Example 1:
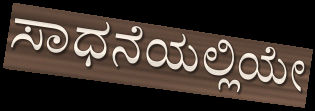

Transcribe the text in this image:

ಸಾಧನೆಯಲ್ಲಿಯೇ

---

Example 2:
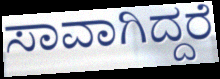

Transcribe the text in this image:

ಸಾವಾಗಿದ್ದರೆ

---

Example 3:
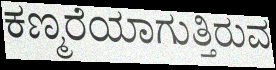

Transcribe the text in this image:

ಕಣ್ಮರೆಯಾಗುತ್ತಿರುವ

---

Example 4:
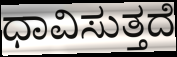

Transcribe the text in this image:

ಧಾವಿಸುತ್ತದೆ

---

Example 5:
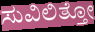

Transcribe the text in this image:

ಸುವಿಲಿತ್ತೋ